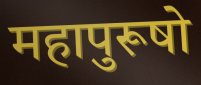
महापुरूषो